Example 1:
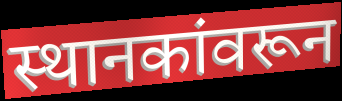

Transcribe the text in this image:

स्थानकांवरून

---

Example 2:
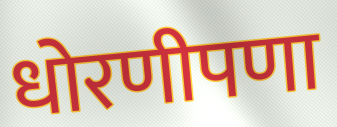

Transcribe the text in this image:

धोरणीपणा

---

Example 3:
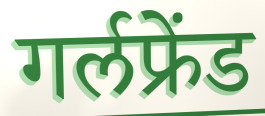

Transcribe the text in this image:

गर्लफ्रेंड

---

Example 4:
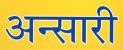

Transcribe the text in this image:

अन्सारी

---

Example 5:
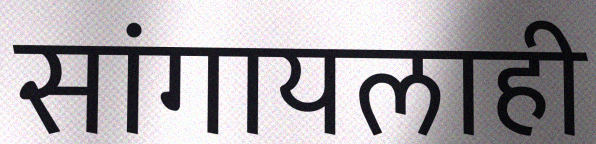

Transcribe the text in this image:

सांगायलाही